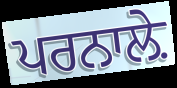
ਪਰਨਾਲ਼ੇ